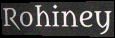
Rohiney